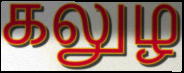
கலுழ